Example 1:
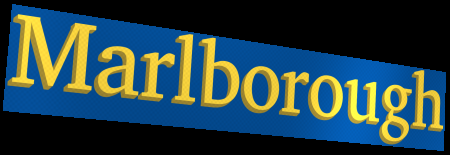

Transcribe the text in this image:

Marlborough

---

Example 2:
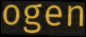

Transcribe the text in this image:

ogen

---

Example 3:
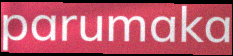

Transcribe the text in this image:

parumaka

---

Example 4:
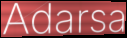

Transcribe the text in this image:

Adarsa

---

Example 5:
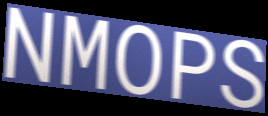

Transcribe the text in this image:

NMOPS